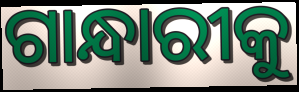
ଗାନ୍ଧାରୀକୁ